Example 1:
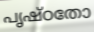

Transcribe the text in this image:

പൃഷ്ഠതോ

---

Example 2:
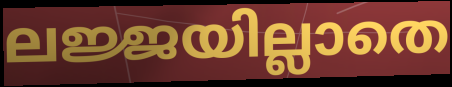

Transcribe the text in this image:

ലജ്ജയില്ലാതെ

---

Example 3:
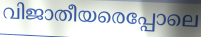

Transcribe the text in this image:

വിജാതീയരെപ്പോലെ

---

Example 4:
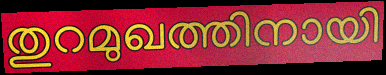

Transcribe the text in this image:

തുറമുഖത്തിനായി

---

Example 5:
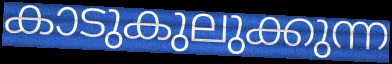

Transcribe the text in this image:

കാടുകുലുക്കുന്ന